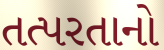
તત્પરતાનો